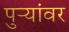
पुऱ्यांवर